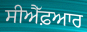
ਸੀਐੱਫ਼ਆਰ